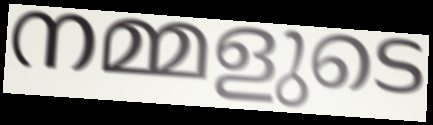
നമ്മളുടെ